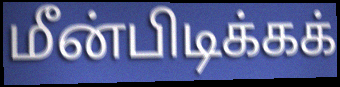
மீன்பிடிக்கக்